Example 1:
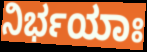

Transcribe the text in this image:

ನಿರ್ಭಯಾಃ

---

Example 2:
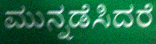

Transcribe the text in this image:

ಮುನ್ನಡೆಸಿದರೆ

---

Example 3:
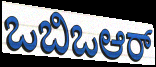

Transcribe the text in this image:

ಒಬಿಒಆರ್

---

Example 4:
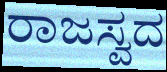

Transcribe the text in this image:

ರಾಜಸ್ವದ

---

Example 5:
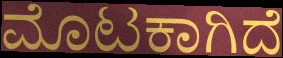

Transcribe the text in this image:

ಮೊಟಕಾಗಿದೆ